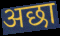
अछा